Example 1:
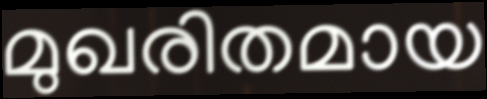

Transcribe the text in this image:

മുഖരിതമായ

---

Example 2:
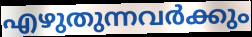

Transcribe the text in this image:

എഴുതുന്നവർക്കും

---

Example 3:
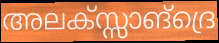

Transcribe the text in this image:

അലക്സ്സാങ്ദ്രെ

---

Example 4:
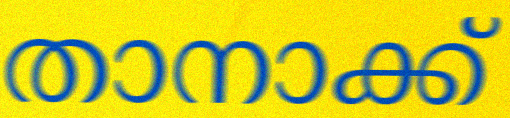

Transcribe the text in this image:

താനാക്ക്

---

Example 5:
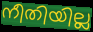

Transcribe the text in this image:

നീതിയില്ല